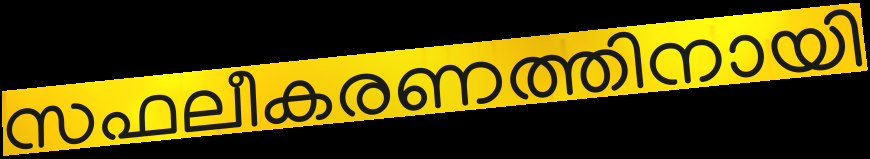
സഫലീകരണത്തിനായി